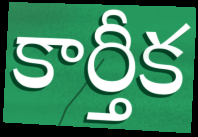
కార్తీక